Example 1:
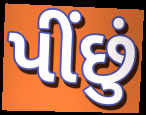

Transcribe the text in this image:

પીંછું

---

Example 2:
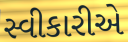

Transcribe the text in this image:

સ્વીકારીએ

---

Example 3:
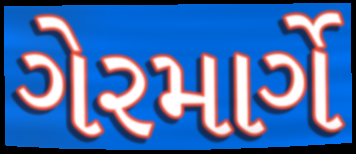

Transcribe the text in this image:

ગેરમાર્ગે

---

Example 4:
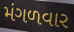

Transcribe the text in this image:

મંગળવાર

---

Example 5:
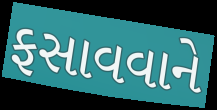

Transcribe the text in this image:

ફસાવવાને